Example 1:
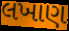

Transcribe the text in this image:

લખાણ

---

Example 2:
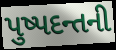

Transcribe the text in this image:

પુષ્પદન્તની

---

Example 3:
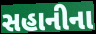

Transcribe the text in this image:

સહાનીના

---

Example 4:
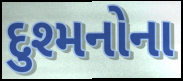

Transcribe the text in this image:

દુશ્મનોના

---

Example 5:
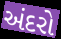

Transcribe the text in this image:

અંદરો